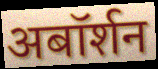
अबॉर्शन